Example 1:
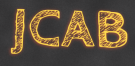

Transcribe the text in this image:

JCAB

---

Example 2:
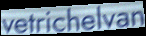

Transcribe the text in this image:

vetrichelvan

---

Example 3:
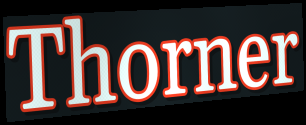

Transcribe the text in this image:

Thorner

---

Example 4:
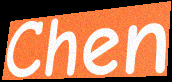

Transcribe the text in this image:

Chen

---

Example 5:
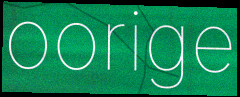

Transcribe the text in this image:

oorige